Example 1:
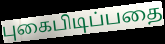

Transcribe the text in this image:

புகைபிடிப்பதை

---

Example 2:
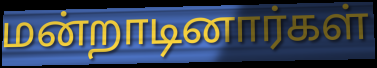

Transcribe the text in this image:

மன்றாடினார்கள்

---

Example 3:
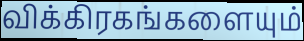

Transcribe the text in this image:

விக்கிரகங்களையும்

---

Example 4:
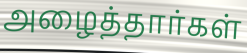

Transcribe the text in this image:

அழைத்தார்கள்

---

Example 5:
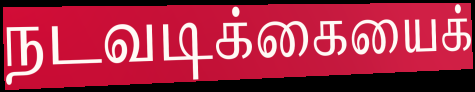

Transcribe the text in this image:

நடவடிக்கையைக்